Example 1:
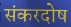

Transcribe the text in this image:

संकरदोष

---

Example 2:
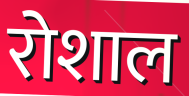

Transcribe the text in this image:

रोशाल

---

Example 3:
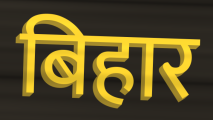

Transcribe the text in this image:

बिहार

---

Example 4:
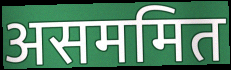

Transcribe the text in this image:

असममित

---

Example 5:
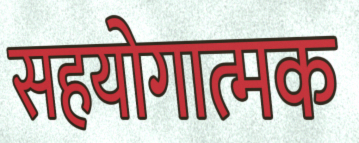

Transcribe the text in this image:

सहयोगात्मक